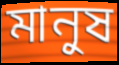
মানুষ